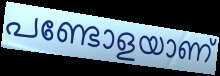
പണ്ടോളയാണ്